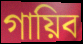
গায়িব